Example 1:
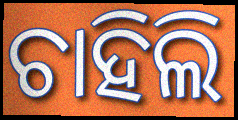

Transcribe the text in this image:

ଚାହିଲି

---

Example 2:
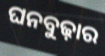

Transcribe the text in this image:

ଘନବୁଢ଼ାର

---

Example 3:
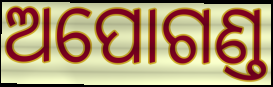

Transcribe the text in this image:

ଅପୋଗଣ୍ଡ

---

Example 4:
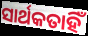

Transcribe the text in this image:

ସାର୍ଥକତାହିଁ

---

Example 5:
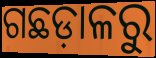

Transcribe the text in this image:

ଗଛଡ଼ାଳରୁ